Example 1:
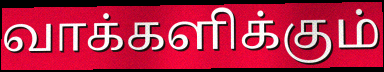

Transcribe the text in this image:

வாக்களிக்கும்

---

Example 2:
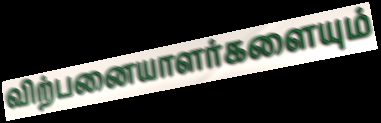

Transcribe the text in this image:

விற்பனையாளர்களையும்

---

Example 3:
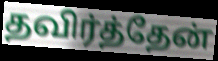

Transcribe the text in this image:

தவிர்த்தேன்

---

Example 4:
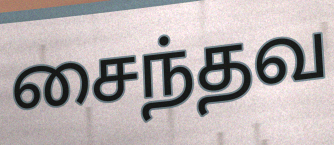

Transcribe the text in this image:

சைந்தவ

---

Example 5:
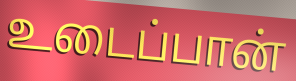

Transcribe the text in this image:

உடைப்பான்